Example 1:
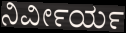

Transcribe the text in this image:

ನಿರ್ವೀರ್ಯ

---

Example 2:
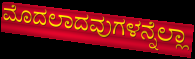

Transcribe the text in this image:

ಮೊದಲಾದವುಗಳನ್ನೆಲ್ಲಾ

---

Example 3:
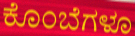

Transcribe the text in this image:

ಕೊಂಬೆಗಳೂ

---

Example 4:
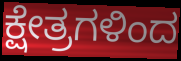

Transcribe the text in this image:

ಕ್ಷೇತ್ರಗಳಿಂದ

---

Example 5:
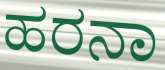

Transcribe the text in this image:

ಹರನಾ